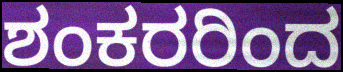
ಶಂಕರರಿಂದ